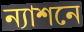
ন্যাশনে